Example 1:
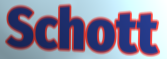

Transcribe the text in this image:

Schott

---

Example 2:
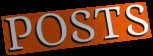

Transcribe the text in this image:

POSTS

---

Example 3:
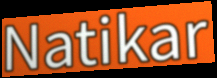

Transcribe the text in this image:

Natikar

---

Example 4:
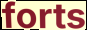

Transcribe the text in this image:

forts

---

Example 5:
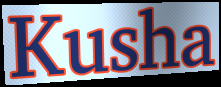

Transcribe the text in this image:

Kusha